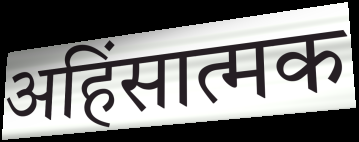
अहिंसात्मक